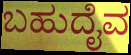
ಬಹುದೈವ